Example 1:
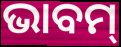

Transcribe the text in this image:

ଭାବମ୍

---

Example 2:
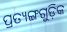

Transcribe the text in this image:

ପ୍ରତ୍ୟଙ୍ଗଗୁଡ଼ିକ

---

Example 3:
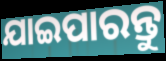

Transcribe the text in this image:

ଯାଇପାରନ୍ତୁ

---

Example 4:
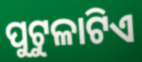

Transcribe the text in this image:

ପୁଟୁଳାଟିଏ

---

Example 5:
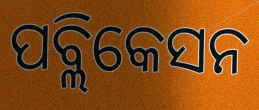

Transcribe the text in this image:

ପବ୍ଲିକେସନ